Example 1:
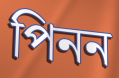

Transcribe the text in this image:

পিনন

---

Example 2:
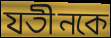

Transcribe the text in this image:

যতীনকে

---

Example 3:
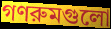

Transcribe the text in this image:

গণরুমগুলো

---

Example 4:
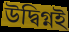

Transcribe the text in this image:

উদ্বিগ্নই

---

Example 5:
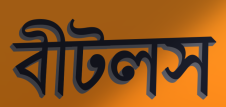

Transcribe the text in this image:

বীটলস